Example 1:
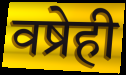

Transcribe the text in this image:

वष्रेही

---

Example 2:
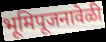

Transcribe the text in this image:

भूमिपूजनावेळी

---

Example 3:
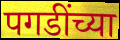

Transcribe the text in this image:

पगडींच्या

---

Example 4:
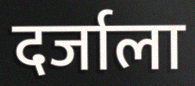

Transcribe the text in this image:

दर्जाला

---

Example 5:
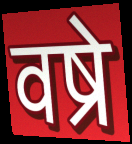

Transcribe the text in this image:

वष्रे